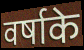
वर्षाके